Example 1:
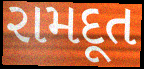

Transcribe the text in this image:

રામદૂત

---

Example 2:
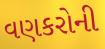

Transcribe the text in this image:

વણકરોની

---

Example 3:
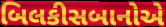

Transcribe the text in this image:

બિલકીસબાનોએ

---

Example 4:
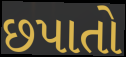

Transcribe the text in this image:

છપાતો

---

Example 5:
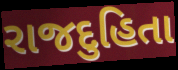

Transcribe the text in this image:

રાજદુહિતા